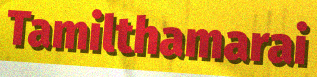
Tamilthamarai